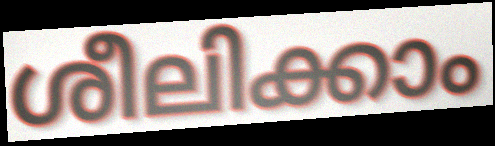
ശീലിക്കാം